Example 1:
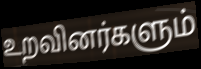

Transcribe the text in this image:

உறவினர்களும்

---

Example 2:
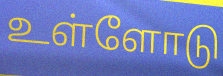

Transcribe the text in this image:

உள்ளோடு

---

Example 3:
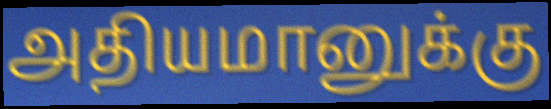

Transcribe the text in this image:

அதியமானுக்கு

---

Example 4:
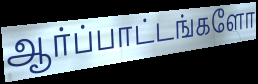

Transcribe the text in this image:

ஆர்ப்பாட்டங்களோ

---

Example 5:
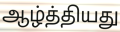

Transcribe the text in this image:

ஆழ்த்தியது